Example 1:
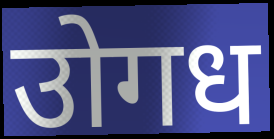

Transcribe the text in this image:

उोगध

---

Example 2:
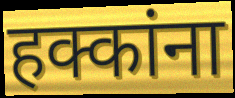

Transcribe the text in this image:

हक्कांना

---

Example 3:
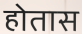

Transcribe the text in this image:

होतास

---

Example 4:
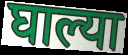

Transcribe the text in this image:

घाल्या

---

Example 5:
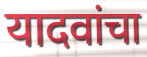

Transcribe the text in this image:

यादवांचा